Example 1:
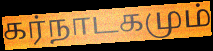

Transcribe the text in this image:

கர்நாடகமும்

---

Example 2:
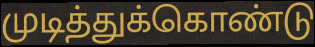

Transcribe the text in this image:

முடித்துக்கொண்டு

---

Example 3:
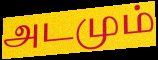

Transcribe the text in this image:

அடமும்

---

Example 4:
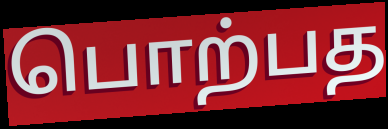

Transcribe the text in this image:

பொற்பத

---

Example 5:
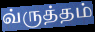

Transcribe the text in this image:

வ்ருத்தம்